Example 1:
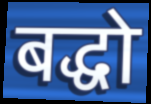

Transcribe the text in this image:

बद्धो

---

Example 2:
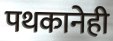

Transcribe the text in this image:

पथकानेही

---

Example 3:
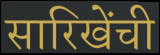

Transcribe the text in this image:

सारिखेंची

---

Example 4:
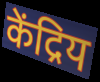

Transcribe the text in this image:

केंद्रिय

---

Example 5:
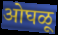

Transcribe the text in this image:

ओघळू